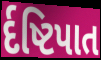
ર્દષ્ટિપાત